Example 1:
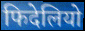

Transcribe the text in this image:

फिदेलियो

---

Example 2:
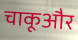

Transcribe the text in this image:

चाकूऔर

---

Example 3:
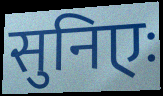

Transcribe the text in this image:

सुनिएः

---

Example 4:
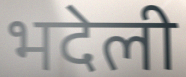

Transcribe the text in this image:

भदेली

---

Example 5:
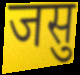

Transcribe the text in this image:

जसु